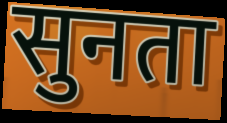
सुनता